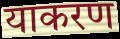
याकरण